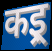
कइ्र